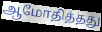
ஆமோதித்தது